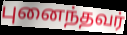
புனைந்தவர்